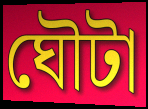
ঘৌটা